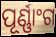
ପୂର୍ଣ୍ଣାଂଗ